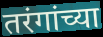
तरंगांच्या